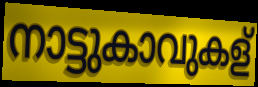
നാട്ടുകാവുകള്